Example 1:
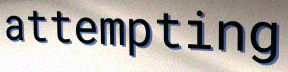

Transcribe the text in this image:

attempting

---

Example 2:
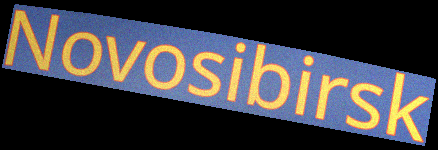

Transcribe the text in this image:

Novosibirsk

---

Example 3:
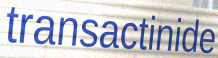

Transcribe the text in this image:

transactinide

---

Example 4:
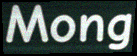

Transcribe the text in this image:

Mong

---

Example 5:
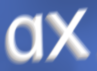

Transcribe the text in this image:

ax